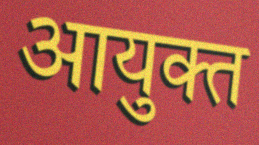
आयुक्त